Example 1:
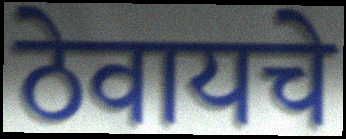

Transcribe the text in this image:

ठेवायचे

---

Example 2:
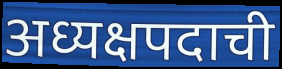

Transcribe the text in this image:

अध्यक्षपदाची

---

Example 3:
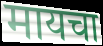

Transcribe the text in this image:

मायचा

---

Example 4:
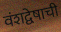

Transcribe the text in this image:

वंशद्वेषाची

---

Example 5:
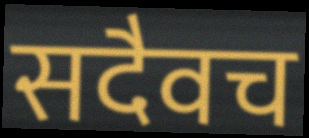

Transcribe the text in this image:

सदैवच